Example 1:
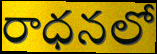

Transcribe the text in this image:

రాధనలో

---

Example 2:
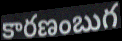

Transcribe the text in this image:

కారణంబుగ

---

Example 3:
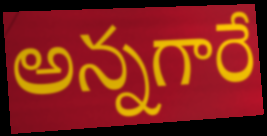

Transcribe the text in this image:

అన్నగారే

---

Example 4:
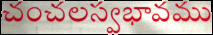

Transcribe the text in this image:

చంచలస్వభావము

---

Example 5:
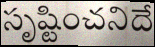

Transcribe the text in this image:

సృష్టించనిదే